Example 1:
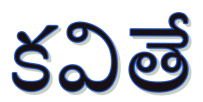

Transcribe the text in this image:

కవితే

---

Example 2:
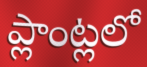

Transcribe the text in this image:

ప్లాంట్లలో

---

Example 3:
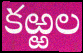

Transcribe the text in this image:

కఱ్ఱల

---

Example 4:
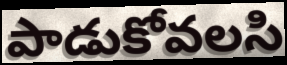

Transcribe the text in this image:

పాడుకోవలసి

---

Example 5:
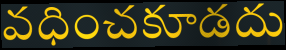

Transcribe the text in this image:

వధించకూడదు